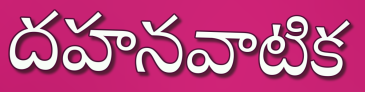
దహనవాటిక